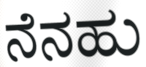
ನೆನಹು